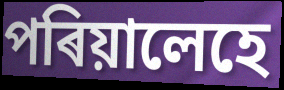
পৰিয়ালেহে